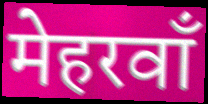
मेहरवाँ